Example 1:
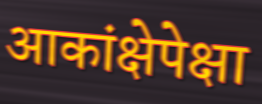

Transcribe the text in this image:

आकांक्षेपेक्षा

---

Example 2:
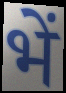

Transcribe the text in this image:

भें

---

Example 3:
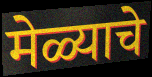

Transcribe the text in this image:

मेळ्याचे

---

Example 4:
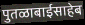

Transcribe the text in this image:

पुतळाबाईसाहेब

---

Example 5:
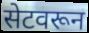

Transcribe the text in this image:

सेटवरून